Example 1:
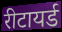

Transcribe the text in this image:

रीटायर्ड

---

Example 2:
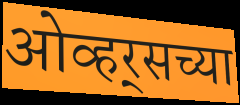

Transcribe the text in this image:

ओव्हर्सच्या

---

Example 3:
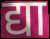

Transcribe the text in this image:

द्या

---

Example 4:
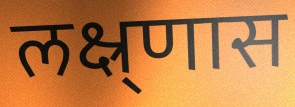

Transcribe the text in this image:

लक्ष्र्णास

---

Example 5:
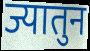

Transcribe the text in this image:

ज्यातुन